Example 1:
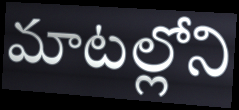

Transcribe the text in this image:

మాటల్లోని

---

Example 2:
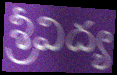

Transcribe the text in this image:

శ్రీవిద్య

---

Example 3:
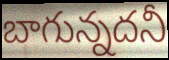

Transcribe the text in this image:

బాగున్నదనీ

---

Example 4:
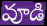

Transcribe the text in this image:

వూడి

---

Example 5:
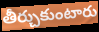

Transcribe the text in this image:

తీర్చుకుంటారు